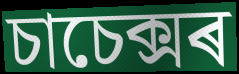
চাচেক্সৰ